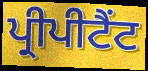
ਪ੍ਰੀਪੀਟੈਂਟ